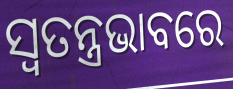
ସ୍ଵତନ୍ତ୍ରଭାବରେ